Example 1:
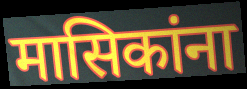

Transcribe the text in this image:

मासिकांना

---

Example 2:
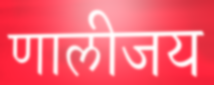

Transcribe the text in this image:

णालीजय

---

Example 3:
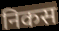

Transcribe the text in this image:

निकस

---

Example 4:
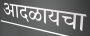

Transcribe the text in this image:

आदळायचा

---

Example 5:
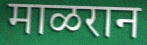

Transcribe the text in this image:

माळरान